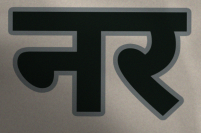
नर